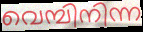
വെമ്പിനിന്ന